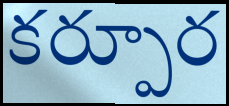
కర్పూర